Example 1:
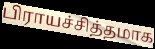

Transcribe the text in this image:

பிராயச்சித்தமாக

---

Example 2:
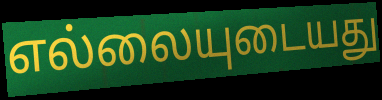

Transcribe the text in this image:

எல்லையுடையது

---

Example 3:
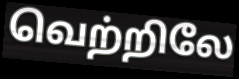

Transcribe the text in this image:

வெற்றிலே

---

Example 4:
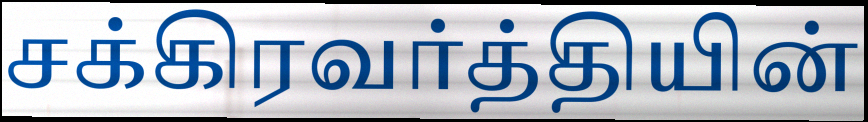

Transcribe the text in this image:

சக்கிரவர்த்தியின்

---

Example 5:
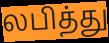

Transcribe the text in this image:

லபித்து